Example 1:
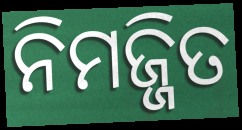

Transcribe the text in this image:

ନିମଜ୍ଜିତ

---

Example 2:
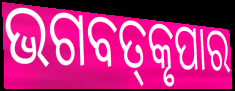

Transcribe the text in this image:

ଭଗବତ୍‌କୃପାର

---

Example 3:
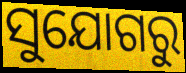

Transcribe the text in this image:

ସୁଯୋଗରୁ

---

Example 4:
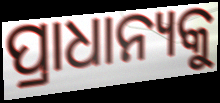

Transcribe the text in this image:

ପ୍ରାଧାନ୍ୟକୁ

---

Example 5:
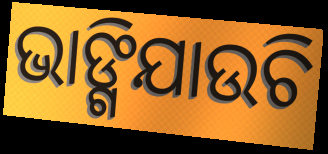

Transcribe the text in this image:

ଭାଙ୍ଗିଯାଉଚି